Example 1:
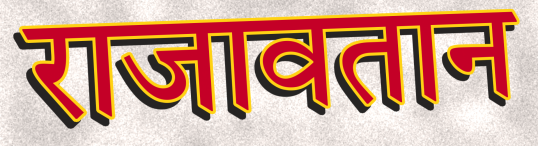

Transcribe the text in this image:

राजावतान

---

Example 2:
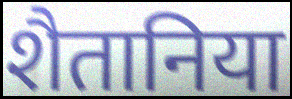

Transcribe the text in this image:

शैतानिया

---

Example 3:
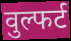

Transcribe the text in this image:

वुल्फर्ट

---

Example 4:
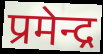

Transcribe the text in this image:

प्रमेन्द्र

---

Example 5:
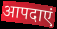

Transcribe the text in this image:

आपदाएं